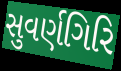
સુવર્ણગિરિ